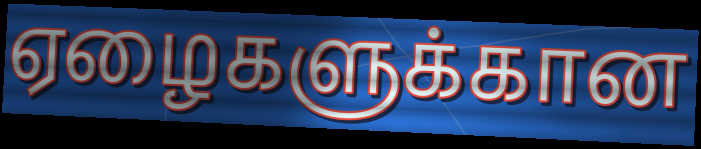
ஏழைகளுக்கான